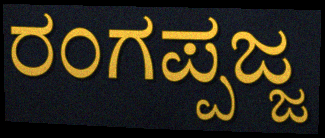
ರಂಗಪ್ಪಜ್ಜ